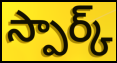
స్పార్క్